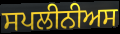
ਸਪਲੀਨੀਅਸ